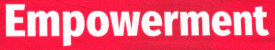
Empowerment